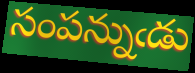
సంపన్నుఁడు